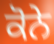
ਕੋਨੇ